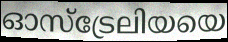
ഓസ്ട്രേലിയയെ